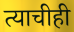
त्याचीही